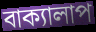
বাক্যালাপ